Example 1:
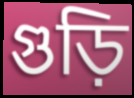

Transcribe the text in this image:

গুড়ি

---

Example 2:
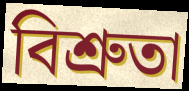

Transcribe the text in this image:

বিশ্রুতা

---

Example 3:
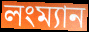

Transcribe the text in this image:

লংম্যান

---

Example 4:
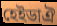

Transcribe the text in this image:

হেইডাঐ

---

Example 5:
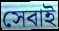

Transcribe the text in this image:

সেবাই